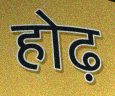
होढ़